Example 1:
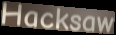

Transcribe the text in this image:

Hacksaw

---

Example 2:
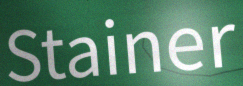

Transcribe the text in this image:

Stainer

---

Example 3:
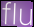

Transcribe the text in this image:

flu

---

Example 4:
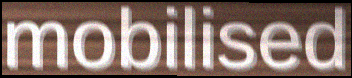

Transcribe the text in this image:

mobilised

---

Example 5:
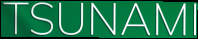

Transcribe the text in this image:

TSUNAMI